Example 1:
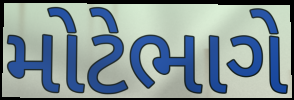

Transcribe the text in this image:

મોટેભાગે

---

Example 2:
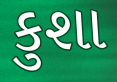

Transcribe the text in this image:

કુશા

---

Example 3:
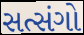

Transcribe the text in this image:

સત્સંગો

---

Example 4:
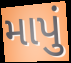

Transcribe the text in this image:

માપું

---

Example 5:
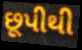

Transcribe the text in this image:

છૂપીથી